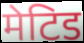
मेटिड